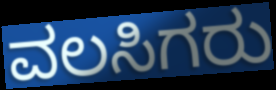
ವಲಸಿಗರು